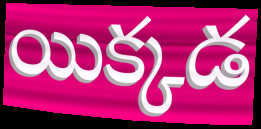
యిక్కడ